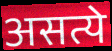
असत्ये